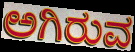
ಅಗಿರುವ